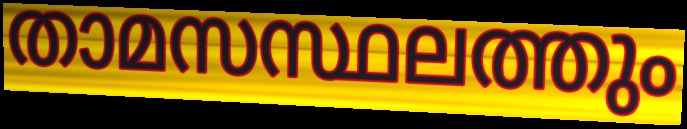
താമസസ്ഥലത്തും